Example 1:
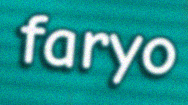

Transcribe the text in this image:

faryo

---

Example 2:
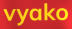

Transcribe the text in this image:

vyako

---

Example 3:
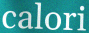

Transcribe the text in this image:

calori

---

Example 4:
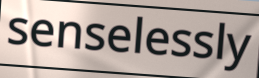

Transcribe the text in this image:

senselessly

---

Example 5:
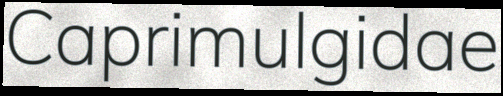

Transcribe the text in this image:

Caprimulgidae